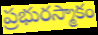
ప్రభురస్మాకం